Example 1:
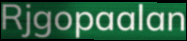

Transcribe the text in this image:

Rjgopaalan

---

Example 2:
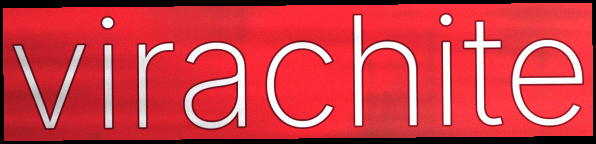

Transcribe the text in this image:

virachite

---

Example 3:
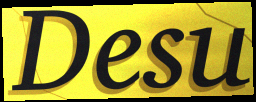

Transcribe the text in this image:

Desu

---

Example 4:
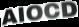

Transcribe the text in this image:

AIOCD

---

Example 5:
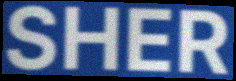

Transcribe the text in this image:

SHER